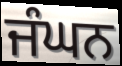
ਜੰਘਨ